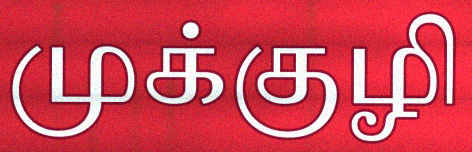
முக்குழி